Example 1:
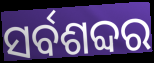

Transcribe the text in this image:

ସର୍ବଶବ୍ଦର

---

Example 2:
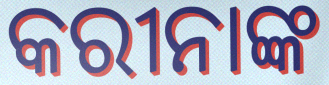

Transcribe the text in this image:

କରୀନାଙ୍କ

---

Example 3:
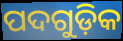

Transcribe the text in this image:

ପଦଗୁଡ଼ିକ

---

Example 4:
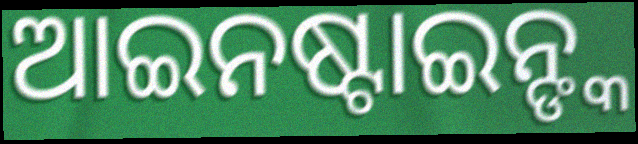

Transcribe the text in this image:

ଆଇନଷ୍ଟାଇନ୍ଙ୍କ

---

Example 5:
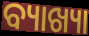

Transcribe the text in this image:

ବ୍ୟାଖ୍ୟା